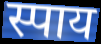
स्पाय